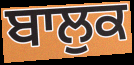
ਬਾਲੁਕ